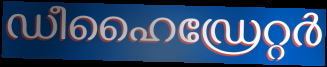
ഡീഹൈഡ്രേറ്റർ